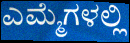
ಎಮ್ಮೆಗಳಲ್ಲಿ